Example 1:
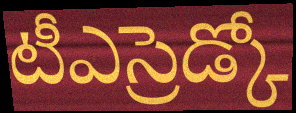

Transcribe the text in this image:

టీఎస్రెడ్కో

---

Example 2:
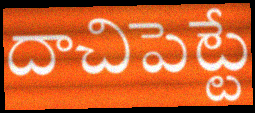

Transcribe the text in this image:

దాచిపెట్టే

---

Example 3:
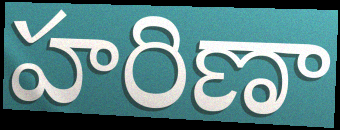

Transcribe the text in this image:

హరిణా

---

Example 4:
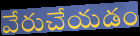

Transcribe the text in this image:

వేరుచేయడం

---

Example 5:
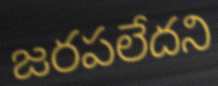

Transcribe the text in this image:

జరపలేదని